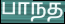
பாநத